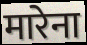
मारेना